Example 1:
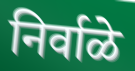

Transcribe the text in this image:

निर्वाळे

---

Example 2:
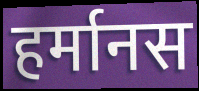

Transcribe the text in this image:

हर्मानस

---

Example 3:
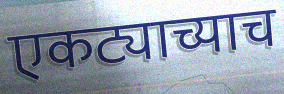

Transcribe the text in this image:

एकट्याच्याच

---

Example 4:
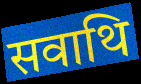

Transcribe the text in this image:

सवाथि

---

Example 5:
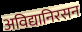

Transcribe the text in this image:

अविद्यानिरसन